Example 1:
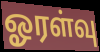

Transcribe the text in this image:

ஓரள்வு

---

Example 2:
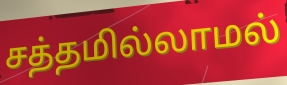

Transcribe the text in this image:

சத்தமில்லாமல்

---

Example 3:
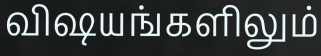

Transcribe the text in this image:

விஷயங்களிலும்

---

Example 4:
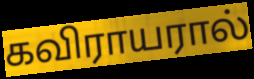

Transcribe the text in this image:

கவிராயரால்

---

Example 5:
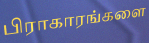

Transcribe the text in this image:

பிராகாரங்களை